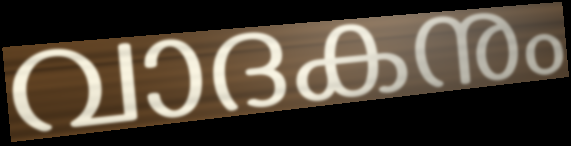
വാദകനും